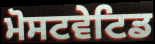
ਮੋਸਟਵੇਟਿਡ